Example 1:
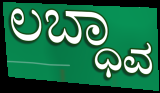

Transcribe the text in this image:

ಲಬ್ಧ್ವಾ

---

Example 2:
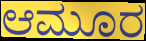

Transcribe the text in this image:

ಆಮೂರ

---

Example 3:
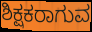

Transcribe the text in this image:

ಶಿಕ್ಷಕರಾಗುವ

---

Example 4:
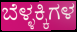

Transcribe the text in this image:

ಬೆಳ್ಳಕ್ಕಿಗಳ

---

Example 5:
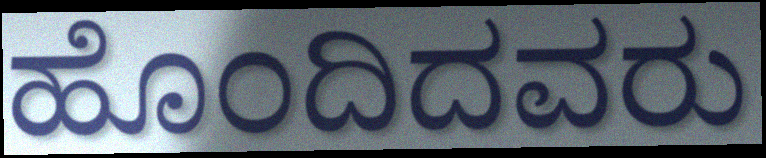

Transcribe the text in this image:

ಹೊಂದಿದವರು